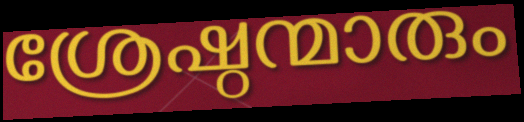
ശ്രേഷ്ഠന്മാരും